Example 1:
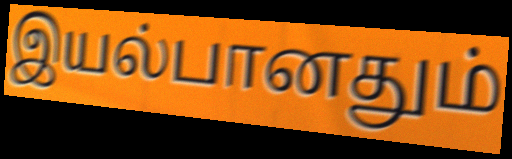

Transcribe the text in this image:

இயல்பானதும்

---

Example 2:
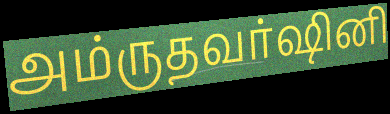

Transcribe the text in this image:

அம்ருதவர்ஷினி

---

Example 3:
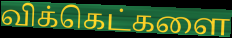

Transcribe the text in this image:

விக்கெட்களை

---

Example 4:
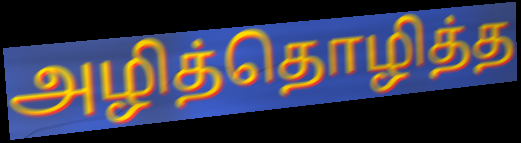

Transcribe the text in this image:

அழித்தொழித்த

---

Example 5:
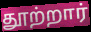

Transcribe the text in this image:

தூற்றார்